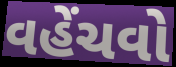
વહેંચવો